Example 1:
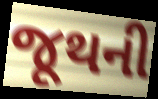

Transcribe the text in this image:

જૂથની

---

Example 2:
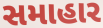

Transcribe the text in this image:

સમાહાર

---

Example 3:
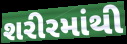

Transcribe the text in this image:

શરીરમાંથી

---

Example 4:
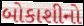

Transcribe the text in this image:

બોકાશીનો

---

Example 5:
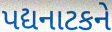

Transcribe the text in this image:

પદ્યનાટકને